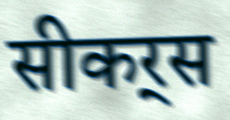
सीकर्स